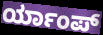
ರ್ಯಾಂಪ್